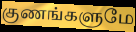
குணங்களுமே